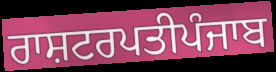
ਰਾਸ਼ਟਰਪਤੀਪੰਜਾਬ